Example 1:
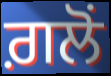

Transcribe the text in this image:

ਗ਼ਲੋਂ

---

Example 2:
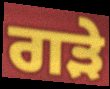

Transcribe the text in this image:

ਗੜੇ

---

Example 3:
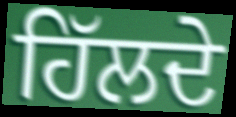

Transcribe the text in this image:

ਹਿੱਲਦੇ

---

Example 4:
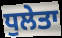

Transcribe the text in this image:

ਧੁਲੇਤਾ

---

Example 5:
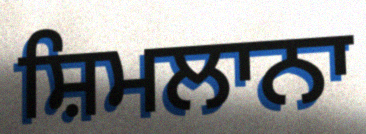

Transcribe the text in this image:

ਸ਼ਿਮਲਾਨਾ